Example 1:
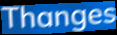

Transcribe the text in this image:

Thanges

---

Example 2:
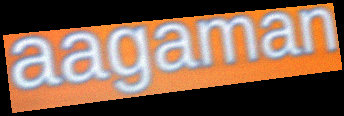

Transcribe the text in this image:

aagaman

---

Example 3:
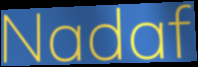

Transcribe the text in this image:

Nadaf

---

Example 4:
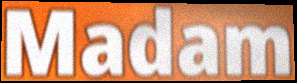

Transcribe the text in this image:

Madam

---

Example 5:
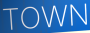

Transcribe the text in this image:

TOWN